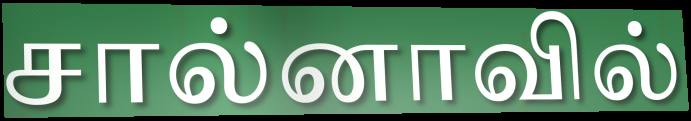
சால்னாவில்